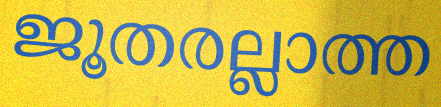
ജൂതരല്ലാത്ത